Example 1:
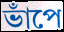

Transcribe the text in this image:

ভাঁপে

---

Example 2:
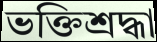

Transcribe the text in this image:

ভক্তিশ্রদ্ধা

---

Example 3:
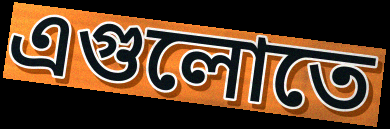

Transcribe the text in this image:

এগুলোতে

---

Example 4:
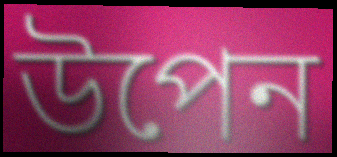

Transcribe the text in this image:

উপেন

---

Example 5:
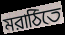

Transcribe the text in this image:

মরাঠিতে